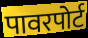
पावरपोर्ट